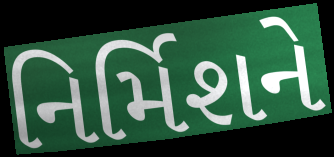
નિર્મિશને